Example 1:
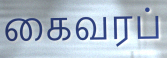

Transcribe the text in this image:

கைவரப்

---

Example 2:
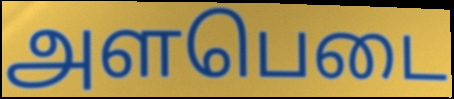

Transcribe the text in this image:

அளபெடை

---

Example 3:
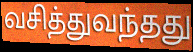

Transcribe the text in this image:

வசித்துவந்தது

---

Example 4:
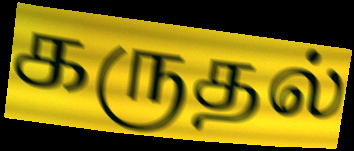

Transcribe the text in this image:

கருதல்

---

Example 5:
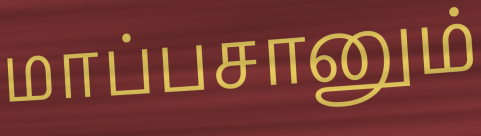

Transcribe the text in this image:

மாப்பசானும்